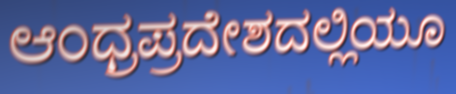
ಆಂಧ್ರಪ್ರದೇಶದಲ್ಲಿಯೂ